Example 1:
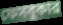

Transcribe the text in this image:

ফেসবুকার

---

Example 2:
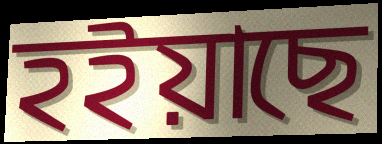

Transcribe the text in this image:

হইয়াছে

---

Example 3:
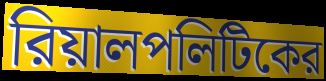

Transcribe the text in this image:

রিয়ালপলিটিকের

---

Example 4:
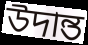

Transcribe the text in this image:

উদান্ত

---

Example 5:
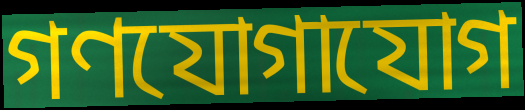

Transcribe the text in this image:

গণযোগাযোগ